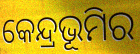
କେନ୍ଦ୍ରଭୂମିର